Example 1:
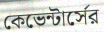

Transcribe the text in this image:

কেভেন্টার্সের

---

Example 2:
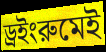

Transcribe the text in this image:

ড্রইংরুমেই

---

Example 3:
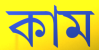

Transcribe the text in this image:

কাম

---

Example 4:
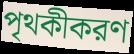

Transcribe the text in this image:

পৃথকীকরণ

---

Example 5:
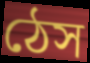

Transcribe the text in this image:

ঠেস